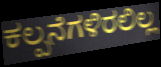
ಕಲ್ಪನೆಗಳಿರಲಿಲ್ಲ